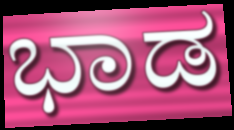
ಭಾಡ